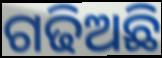
ଗଢିଅଛି